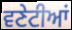
ਵਣੇਟੀਆਂ